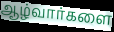
ஆழ்வார்களை